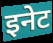
इनेट